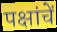
पक्षांचें